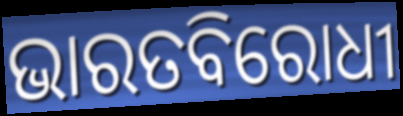
ଭାରତବିରୋଧୀ